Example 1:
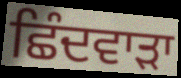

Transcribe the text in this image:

ਛਿੰਦਵਾੜਾ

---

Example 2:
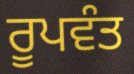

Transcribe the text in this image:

ਰੂਪਵੰਤ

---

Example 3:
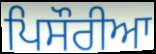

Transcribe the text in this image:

ਪਿਸੌਰੀਆ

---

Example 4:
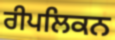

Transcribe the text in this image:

ਰੀਪਲਿਕਨ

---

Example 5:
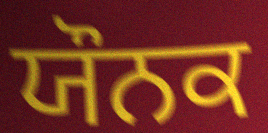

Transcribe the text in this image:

ਯੌਨਕ